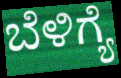
ಬೆಳಿಗ್ಯೆ